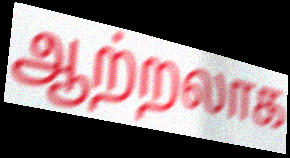
ஆற்றலாக